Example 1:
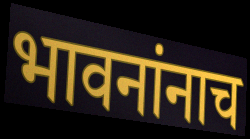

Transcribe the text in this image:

भावनांनाच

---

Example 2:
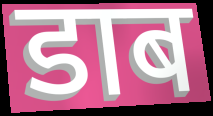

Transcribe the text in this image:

डाब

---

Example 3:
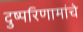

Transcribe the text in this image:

दुष्परिणामांचे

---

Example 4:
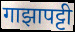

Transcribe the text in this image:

गाझापट्टी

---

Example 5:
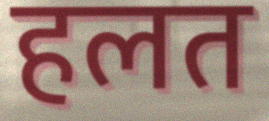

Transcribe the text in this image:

हलत